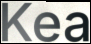
Kea